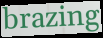
brazing